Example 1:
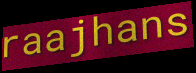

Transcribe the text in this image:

raajhans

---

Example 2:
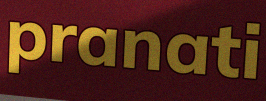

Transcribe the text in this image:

pranati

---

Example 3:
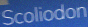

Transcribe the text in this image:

Scoliodon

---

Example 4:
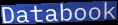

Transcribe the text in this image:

Databook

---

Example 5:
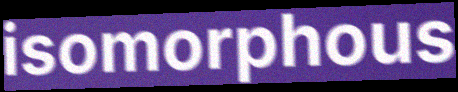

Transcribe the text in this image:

isomorphous